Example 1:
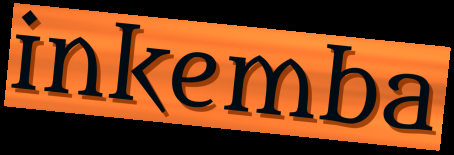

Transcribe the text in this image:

inkemba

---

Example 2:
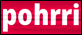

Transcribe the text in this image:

pohrri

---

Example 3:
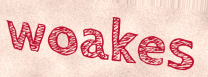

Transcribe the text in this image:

woakes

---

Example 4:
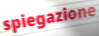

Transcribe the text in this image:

spiegazione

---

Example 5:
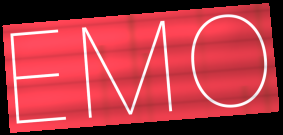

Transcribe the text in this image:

EMO